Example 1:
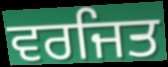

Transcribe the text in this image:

ਵਰਜਿਤ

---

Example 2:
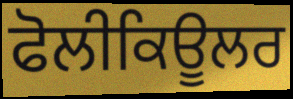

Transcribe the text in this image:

ਫੋਲੀਕਿਊਲਰ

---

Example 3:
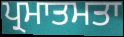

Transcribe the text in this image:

ਪ੍ਰਮਾਤਮਤਾ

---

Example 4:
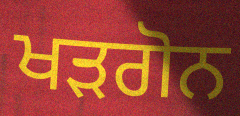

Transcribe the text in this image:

ਖੜਗੋਨ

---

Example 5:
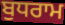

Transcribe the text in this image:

ਬੁਧਰਾਮ